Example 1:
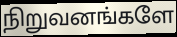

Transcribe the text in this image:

நிறுவனங்களே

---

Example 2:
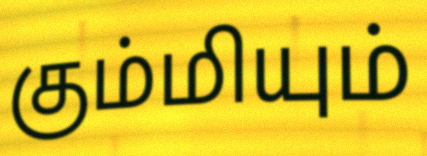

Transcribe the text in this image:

கும்மியும்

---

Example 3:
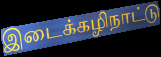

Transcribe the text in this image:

இடைக்கழிநாட்டு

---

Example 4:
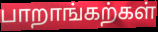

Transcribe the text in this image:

பாறாங்கற்கள்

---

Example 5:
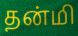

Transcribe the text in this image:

தன்மி